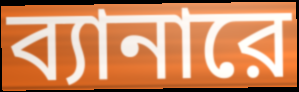
ব্যানারে